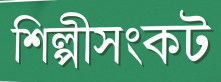
শিল্পীসংকট